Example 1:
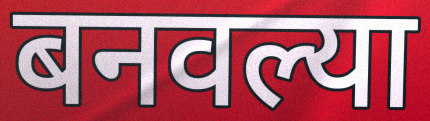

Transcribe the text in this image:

बनवल्या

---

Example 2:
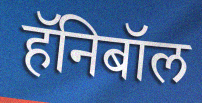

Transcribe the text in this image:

हॅनिबॉल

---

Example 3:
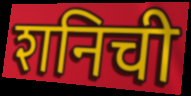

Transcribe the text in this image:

शनिची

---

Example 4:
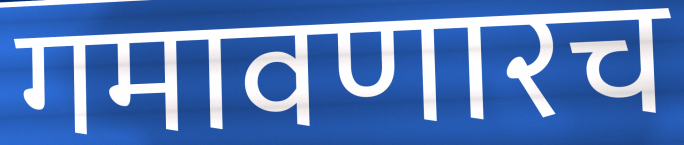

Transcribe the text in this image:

गमावणारच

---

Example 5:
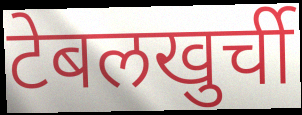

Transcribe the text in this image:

टेबलखुर्ची